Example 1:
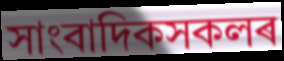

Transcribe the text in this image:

সাংবাদিকসকলৰ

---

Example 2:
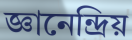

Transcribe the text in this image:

জ্ঞানেন্দ্ৰিয়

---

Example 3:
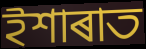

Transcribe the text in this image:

ইশাৰাত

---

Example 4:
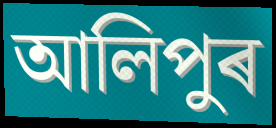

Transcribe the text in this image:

আলিপুৰ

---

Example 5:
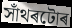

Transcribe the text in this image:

সাঁথৰটোৰ